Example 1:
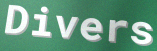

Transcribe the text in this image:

Divers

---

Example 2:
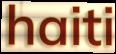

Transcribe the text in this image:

haiti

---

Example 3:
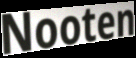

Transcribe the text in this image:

Nooten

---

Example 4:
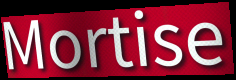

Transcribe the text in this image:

Mortise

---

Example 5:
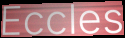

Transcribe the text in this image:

Eccles